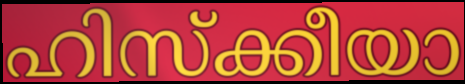
ഹിസ്ക്കീയാ